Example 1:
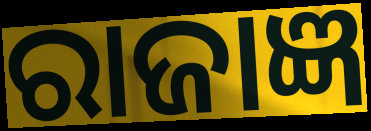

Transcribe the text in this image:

ରାଜାଜ୍ଞ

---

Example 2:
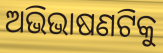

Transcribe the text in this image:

ଅଭିଭାଷଣଟିକୁ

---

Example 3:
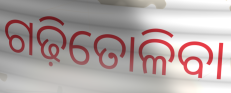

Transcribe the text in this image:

ଗଢ଼ିତୋଳିବା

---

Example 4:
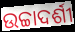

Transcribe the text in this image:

ଉଚ୍ଚାଦର୍ଶୀ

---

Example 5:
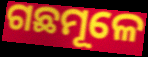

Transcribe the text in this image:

ଗଛମୂଳେ